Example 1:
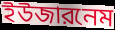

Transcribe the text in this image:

ইউজারনেম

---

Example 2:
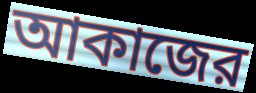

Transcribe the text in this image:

আকাজের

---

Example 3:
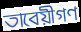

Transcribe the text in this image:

তাবেয়ীগণ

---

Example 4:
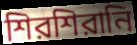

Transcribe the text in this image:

শিরশিরানি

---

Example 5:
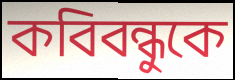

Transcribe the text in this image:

কবিবন্ধুকে